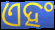
ଏହଂ